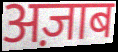
अज़ाब